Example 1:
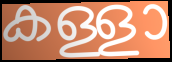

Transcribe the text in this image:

കള്ളാ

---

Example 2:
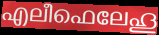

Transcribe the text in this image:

എലീഫെലേഹൂ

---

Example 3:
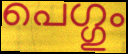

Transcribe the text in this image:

പെഗ്ഗും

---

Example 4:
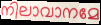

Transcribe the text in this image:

നിലാവാനമേ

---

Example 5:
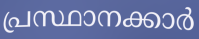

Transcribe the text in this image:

പ്രസ്ഥാനക്കാർ